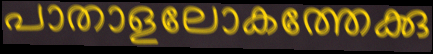
പാതാളലോകത്തേക്കു